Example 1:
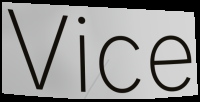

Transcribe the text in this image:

Vice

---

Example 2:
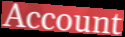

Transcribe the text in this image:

Account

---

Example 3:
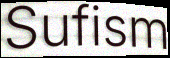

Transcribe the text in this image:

Sufism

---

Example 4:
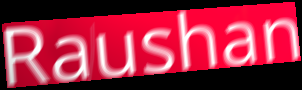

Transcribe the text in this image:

Raushan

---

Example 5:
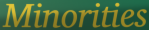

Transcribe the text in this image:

Minorities